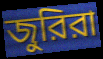
জুরিরা